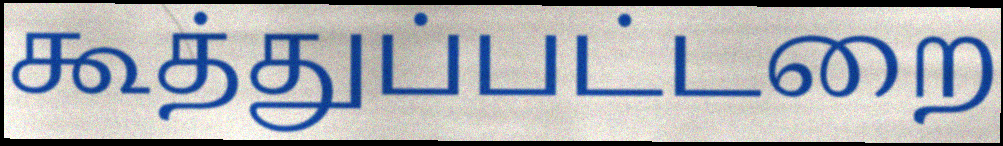
கூத்துப்பட்டறை